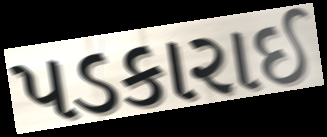
પડકારાઈ